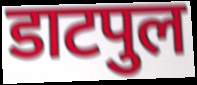
डाटपुल